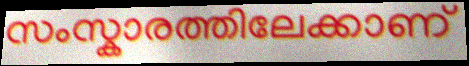
സംസ്കാരത്തിലേക്കാണ്